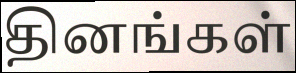
தினங்கள்